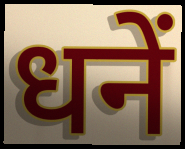
धनें